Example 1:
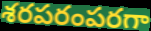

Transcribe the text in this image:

శరపరంపరగా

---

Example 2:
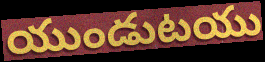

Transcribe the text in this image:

యుండుటయు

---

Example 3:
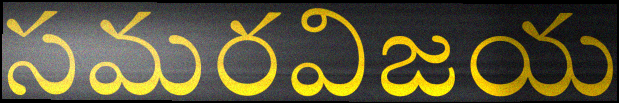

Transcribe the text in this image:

సమరవిజయ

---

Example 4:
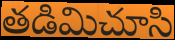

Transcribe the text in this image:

తడిమిచూసి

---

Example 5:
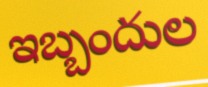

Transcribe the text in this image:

ఇబ్బందుల